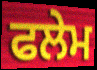
ਫਲੇਮ